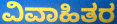
ವಿವಾಹಿತರ